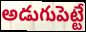
అడుగుపెట్టే